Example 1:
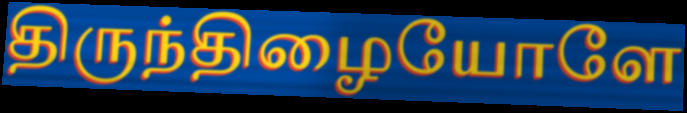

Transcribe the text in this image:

திருந்திழையோளே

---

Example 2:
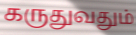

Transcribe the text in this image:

கருதுவதும்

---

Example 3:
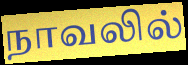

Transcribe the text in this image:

நாவலில்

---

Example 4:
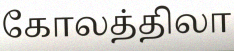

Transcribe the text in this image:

கோலத்திலா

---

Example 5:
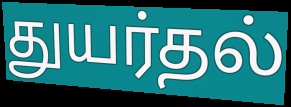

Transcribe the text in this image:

துயர்தல்